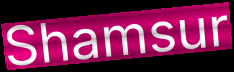
Shamsur